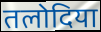
तलोदिया